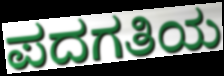
ಪದಗತಿಯ